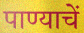
पाण्याचें